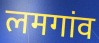
लमगांव